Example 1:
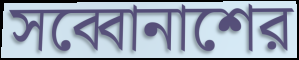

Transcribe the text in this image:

সব্বোনাশের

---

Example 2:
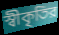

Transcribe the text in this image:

স্বীকৃতির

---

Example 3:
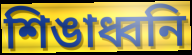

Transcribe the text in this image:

শিঙাধ্বনি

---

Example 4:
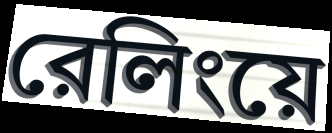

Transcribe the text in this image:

রেলিংয়ে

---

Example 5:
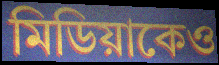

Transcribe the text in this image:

মিডিয়াকেও